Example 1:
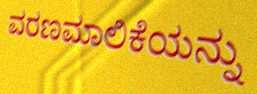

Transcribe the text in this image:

ವರಣಮಾಲಿಕೆಯನ್ನು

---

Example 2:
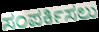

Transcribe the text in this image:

ಸಂಪರ್ಕಿಸಲು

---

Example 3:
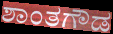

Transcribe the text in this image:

ಶಾಂತಗೌಡ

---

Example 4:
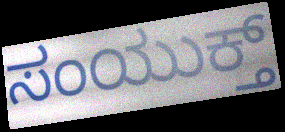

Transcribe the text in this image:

ಸಂಯುಕ್ತ್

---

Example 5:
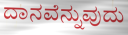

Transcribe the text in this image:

ದಾನವೆನ್ನುವುದು